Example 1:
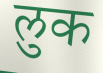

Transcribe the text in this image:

लुक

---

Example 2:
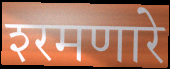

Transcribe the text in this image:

श्रमणारे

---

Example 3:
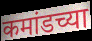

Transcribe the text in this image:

कमांडच्या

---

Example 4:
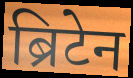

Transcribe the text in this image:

ब्रिटेन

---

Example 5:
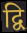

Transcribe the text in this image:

द्वि